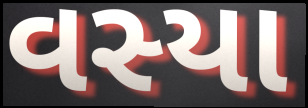
વસ્યા